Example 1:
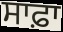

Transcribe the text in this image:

ਸਾਫ਼ਾ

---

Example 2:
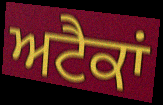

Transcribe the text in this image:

ਅਟੈਕਾਂ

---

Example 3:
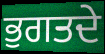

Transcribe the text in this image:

ਭੁਗਤਦੇ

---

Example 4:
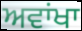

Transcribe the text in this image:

ਅਵਾਂਖਾ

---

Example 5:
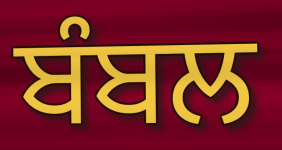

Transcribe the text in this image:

ਬੰਬਲ